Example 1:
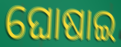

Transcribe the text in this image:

ଘୋଷାଇ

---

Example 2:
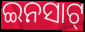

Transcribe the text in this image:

ଇନସାଟ୍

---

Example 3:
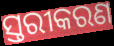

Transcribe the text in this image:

ସ୍ତରୀକରଣ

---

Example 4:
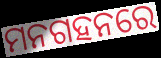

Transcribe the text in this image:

ମନଗହନରେ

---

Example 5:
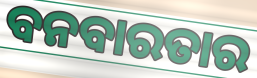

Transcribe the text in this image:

ବନବାରତାର